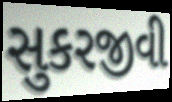
સુકરજીવી